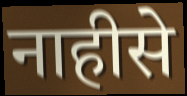
नाहीसे